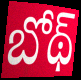
బోథ్